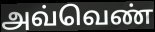
அவ்வெண்